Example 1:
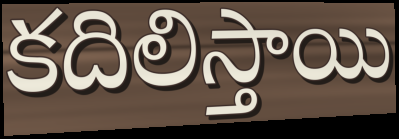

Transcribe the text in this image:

కదిలిస్తాయి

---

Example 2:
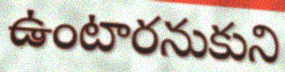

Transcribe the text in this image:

ఉంటారనుకుని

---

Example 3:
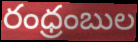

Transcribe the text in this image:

రంధ్రంబుల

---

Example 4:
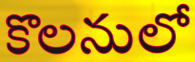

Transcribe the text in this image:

కొలనులో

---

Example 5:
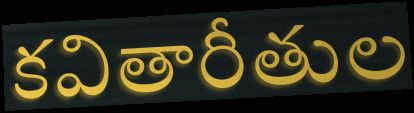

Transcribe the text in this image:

కవితారీతుల